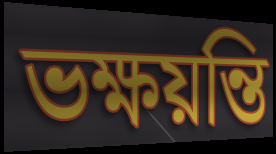
ভক্ষয়ন্তি